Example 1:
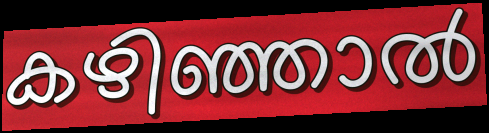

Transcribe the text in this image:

കഴിഞ്ഞാൽ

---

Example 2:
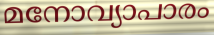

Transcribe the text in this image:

മനോവ്യാപാരം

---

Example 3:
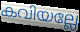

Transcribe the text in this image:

കവിയല്ലേ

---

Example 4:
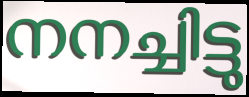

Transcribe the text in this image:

നനച്ചിട്ടു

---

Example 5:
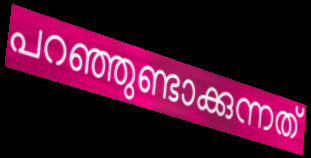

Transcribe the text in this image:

പറഞ്ഞുണ്ടാക്കുന്നത്